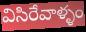
విసిరేవాళ్ళం